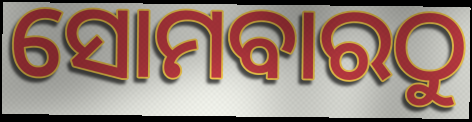
ସୋମବାରଠୁ